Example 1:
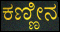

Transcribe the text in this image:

ಕಣ್ಣೀನ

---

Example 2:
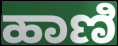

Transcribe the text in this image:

ಹಾಣಿ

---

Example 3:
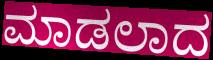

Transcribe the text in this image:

ಮಾಡಲಾದ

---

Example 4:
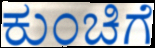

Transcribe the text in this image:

ಕುಂಚಿಗೆ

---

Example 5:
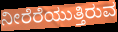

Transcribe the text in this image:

ನೀರೆರೆಯುತ್ತಿರುವ